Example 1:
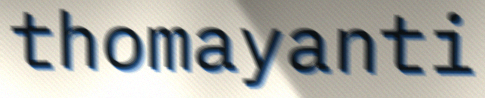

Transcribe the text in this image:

thomayanti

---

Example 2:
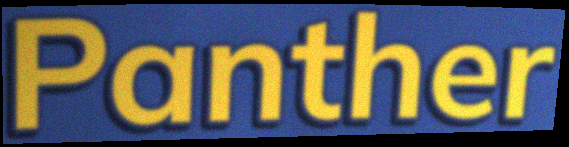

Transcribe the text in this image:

Panther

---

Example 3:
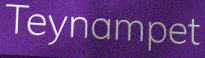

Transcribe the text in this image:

Teynampet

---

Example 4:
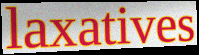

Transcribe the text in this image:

laxatives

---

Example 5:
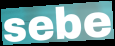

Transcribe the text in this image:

sebe